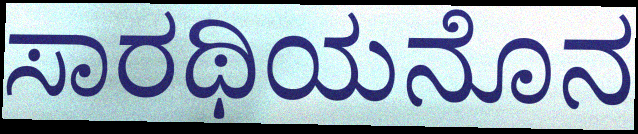
ಸಾರಥಿಯನೊನ